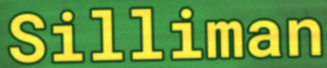
Silliman